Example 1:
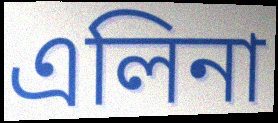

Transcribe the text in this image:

এলিনা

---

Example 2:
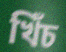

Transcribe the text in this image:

খিঁচ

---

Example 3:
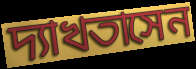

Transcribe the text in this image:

দ্যাখতাসেন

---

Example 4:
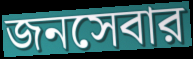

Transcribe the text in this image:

জনসেবার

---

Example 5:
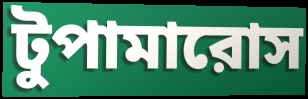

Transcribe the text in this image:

টুপামারোস